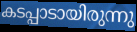
കടപ്പാടായിരുന്നു